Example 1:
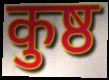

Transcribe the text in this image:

कुष्ठ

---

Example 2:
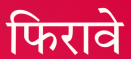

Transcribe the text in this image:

फिरावे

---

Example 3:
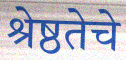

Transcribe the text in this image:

श्रेष्ठतेचे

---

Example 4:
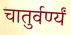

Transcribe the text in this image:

चातुर्वर्ण्यं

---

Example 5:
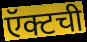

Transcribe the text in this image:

ऍक्टची